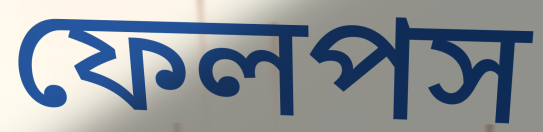
ফেলপস